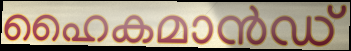
ഹൈകമാൻഡ്